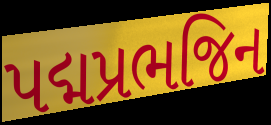
પદ્મપ્રભજિન